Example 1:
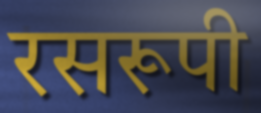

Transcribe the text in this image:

रसरूपी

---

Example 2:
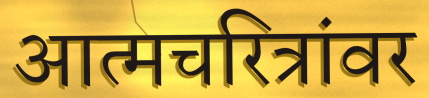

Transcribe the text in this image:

आत्मचरित्रांवर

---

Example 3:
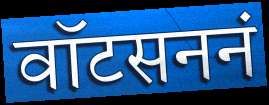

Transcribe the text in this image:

वॉटसननं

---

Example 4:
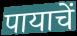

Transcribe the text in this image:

पायाचें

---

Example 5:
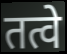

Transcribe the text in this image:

तत्वे